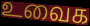
உவைக